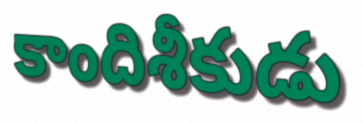
కాందిశీకుడు